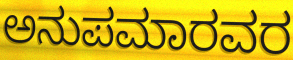
ಅನುಪಮಾರವರ